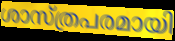
ശാസ്ത്രപരമായി